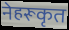
नेहरूकृत